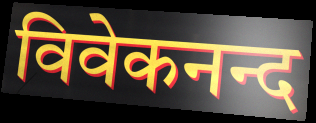
विवेकनन्द